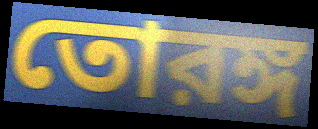
তোরঙ্গ